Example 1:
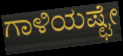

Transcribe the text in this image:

ಗಾಳಿಯಷ್ಟೇ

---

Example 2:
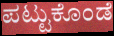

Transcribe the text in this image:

ಪಟ್ಟುಕೊಂಡೆ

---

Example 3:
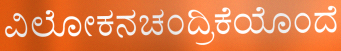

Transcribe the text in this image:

ವಿಲೋಕನಚಂದ್ರಿಕೆಯೊಂದೆ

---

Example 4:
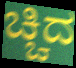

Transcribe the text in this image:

ಚ್ಚಿದ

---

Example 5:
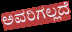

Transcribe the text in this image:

ಅವರಿಗಲ್ಲದೆ